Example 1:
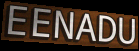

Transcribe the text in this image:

EENADU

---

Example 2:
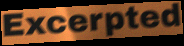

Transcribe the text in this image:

Excerpted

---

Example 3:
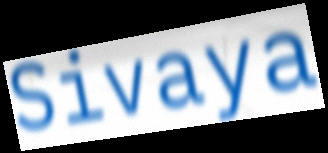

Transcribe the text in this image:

Sivaya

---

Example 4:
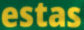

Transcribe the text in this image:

estas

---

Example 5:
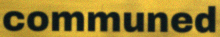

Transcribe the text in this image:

communed